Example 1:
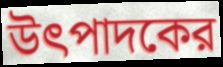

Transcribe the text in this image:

উৎপাদকের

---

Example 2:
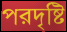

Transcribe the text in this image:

পরদৃষ্টি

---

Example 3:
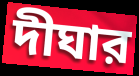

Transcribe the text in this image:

দীঘার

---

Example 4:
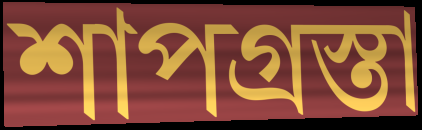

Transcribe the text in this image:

শাপগ্রস্তা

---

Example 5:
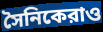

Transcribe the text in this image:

সৈনিকেরাও